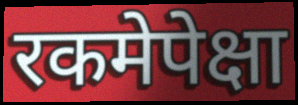
रकमेपेक्षा